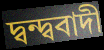
দ্বন্দ্ববাদী